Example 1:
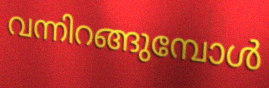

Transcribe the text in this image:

വന്നിറങ്ങുമ്പോൾ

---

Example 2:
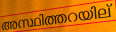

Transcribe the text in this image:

അസ്ഥിത്തറയില്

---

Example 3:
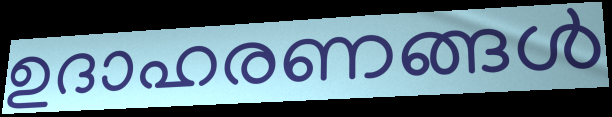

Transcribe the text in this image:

ഉദാഹരണങ്ങൾ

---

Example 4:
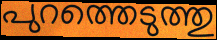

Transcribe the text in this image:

പുറത്തെടുത്തു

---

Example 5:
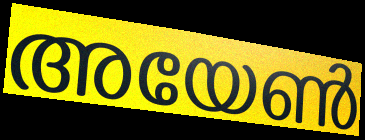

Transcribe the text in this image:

അയേൺ